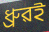
ধ্ৰুৱই